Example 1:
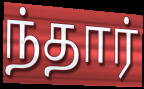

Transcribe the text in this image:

ந்தார்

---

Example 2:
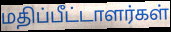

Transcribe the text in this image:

மதிப்பீட்டாளர்கள்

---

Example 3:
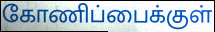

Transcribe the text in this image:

கோணிப்பைக்குள்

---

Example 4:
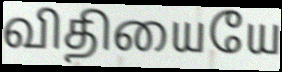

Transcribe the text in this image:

விதியையே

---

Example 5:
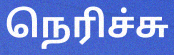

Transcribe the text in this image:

நெரிச்சு